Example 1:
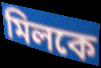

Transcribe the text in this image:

মিলকে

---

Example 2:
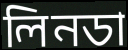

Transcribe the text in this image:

লিনডা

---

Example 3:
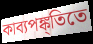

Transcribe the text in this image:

কাব্যপঙ্ক্তিতে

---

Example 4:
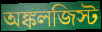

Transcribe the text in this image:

অঙ্কলজিস্ট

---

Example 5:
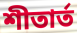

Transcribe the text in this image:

শীতার্ত